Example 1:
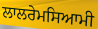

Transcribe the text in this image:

ਲਾਲਰੇਮਸਿਆਮੀ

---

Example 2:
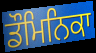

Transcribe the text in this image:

ਡੌਮਿਨਿਕਾ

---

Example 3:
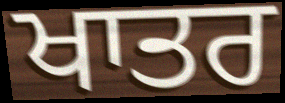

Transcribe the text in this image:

ਖਾਤਰ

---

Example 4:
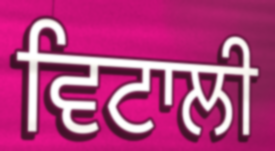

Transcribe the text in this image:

ਵਿਟਾਲੀ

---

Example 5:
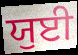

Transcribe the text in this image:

ਯੁਈ